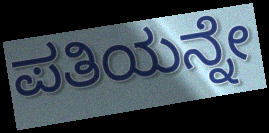
ಪತಿಯನ್ನೇ